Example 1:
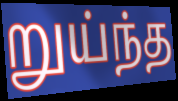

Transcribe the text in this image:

றுய்ந்த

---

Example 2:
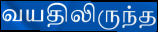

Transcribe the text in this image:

வயதிலிருந்த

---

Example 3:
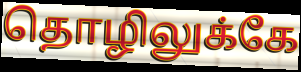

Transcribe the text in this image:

தொழிலுக்கே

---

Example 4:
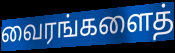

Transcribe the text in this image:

வைரங்களைத்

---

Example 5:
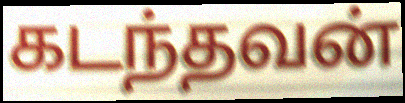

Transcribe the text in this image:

கடந்தவன்